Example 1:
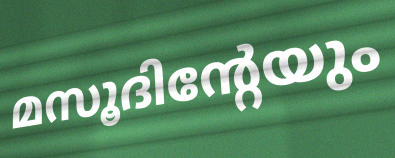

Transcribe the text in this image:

മസൂദിന്റേയും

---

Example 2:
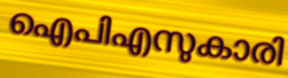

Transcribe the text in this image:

ഐപിഎസുകാരി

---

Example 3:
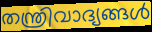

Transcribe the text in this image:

തന്ത്രിവാദ്യങ്ങൾ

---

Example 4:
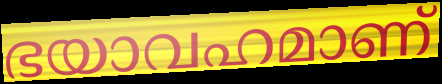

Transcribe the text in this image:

ഭയാവഹമാണ്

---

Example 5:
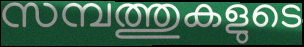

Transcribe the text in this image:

സമ്പത്തുകളുടെ